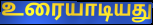
உரையாடியது